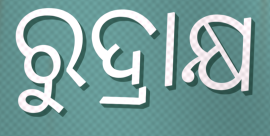
ରୁଦ୍ରାକ୍ଷ